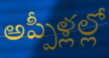
అప్పీళ్లల్లో